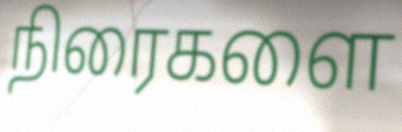
நிரைகளை